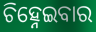
ଚିହ୍ନେଇବାର